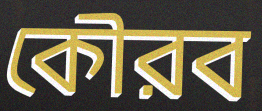
কৌরব